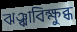
ঝঞ্ঝাবিক্ষুব্ধ